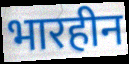
भारहीन